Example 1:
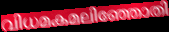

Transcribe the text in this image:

വിധമകമലിഞ്ഞോതി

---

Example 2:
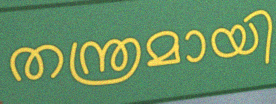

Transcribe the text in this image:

തന്ത്രമായി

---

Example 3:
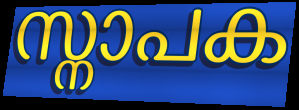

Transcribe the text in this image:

സ്നാപക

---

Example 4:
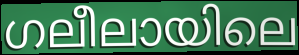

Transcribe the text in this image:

ഗലീലായിലെ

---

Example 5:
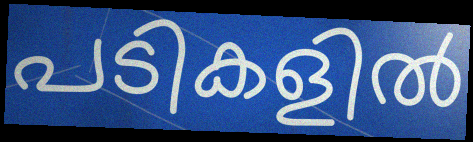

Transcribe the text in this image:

പടികളിൽ